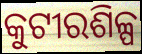
କୁଟୀରଶିଳ୍ପ